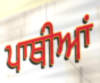
ਪਾਥੀਆਂ